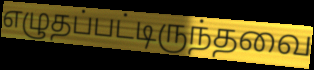
எழுதப்பட்டிருந்தவை